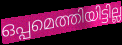
ഒപ്പമെത്തിയിട്ടില്ല